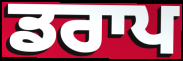
ਡਰਾਪ